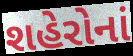
શહેરોનાં